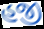
હજી